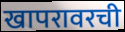
खापरावरची